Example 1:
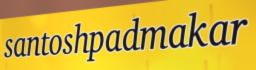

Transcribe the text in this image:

santoshpadmakar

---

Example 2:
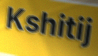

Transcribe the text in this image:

Kshitij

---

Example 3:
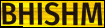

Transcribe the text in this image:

BHISHM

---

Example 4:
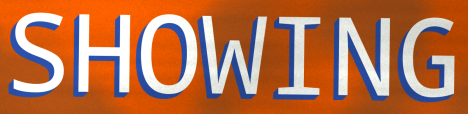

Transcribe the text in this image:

SHOWING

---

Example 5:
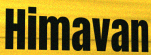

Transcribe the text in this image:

Himavan